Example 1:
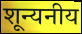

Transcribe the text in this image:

शून्यनीय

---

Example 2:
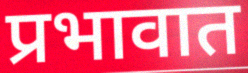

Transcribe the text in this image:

प्रभावात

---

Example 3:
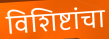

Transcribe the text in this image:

विशिष्टांचा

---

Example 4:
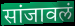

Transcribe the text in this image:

सांजावलं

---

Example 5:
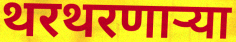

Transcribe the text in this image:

थरथरणाऱ्या